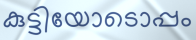
കുട്ടിയോടൊപ്പം